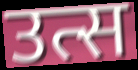
उत्स